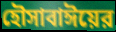
হৌসাবাঈয়ের